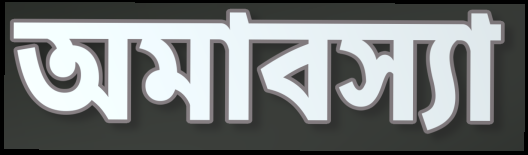
অমাবস্যা